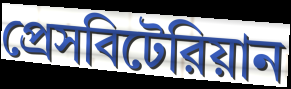
প্রেসবিটেরিয়ান